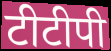
टीटीपी